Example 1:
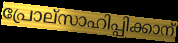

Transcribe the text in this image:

പ്രോല്സാഹിപ്പിക്കാന്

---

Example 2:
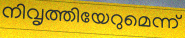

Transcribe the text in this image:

നിവൃത്തിയേറുമെന്ന്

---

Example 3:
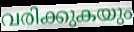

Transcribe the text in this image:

വരിക്കുകയും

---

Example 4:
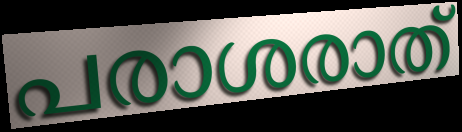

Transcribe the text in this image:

പരാശരാത്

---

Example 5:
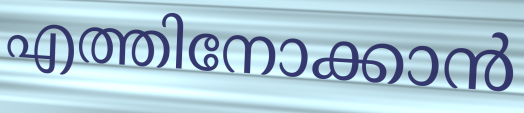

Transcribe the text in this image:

എത്തിനോക്കാൻ